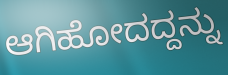
ಆಗಿಹೋದದ್ದನ್ನು